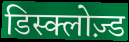
डिस्क्लोज़्ड